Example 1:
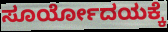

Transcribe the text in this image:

ಸೂರ್ಯೋದಯಕ್ಕೆ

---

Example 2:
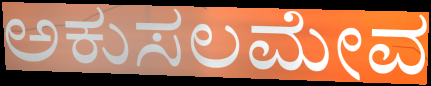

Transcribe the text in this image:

ಅಕುಸಲಮೇವ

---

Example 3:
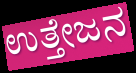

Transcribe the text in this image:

ಉತ್ತೇಜನ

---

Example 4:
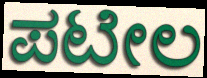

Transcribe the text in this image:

ಪಟೇಲ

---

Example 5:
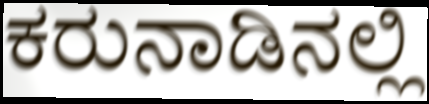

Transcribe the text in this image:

ಕರುನಾಡಿನಲ್ಲಿ